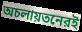
অচলায়তনেরই